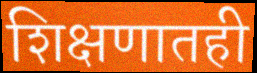
शिक्षणातही